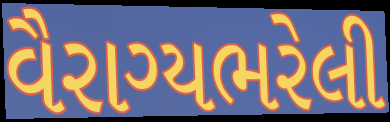
વૈરાગ્યભરેલી